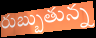
రుబ్బుతున్న